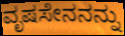
ವೃಷಸೇನನನ್ನು